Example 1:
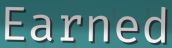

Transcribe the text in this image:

Earned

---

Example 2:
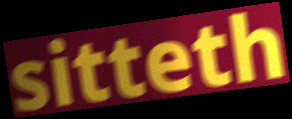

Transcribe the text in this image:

sitteth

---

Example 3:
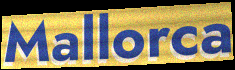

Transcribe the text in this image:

Mallorca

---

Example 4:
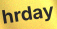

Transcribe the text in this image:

hrday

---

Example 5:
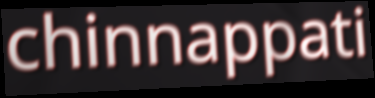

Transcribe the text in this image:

chinnappati